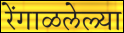
रेंगाळलेल्या